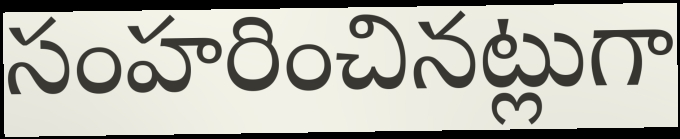
సంహరించినట్లుగా